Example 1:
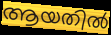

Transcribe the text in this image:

ആയതിൽ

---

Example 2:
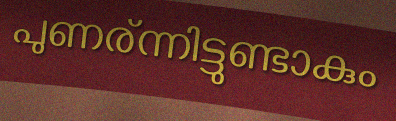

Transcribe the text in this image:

പുണര്ന്നിട്ടുണ്ടാകും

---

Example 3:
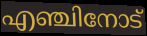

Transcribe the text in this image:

എഞ്ചിനോട്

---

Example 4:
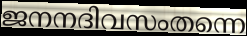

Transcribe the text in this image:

ജനനദിവസംതന്നെ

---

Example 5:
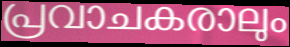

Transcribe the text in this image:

പ്രവാചകരാലും